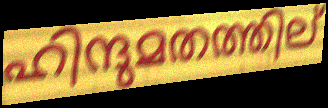
ഹിന്ദുമതത്തില്